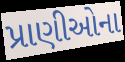
પ્રાણીઓના